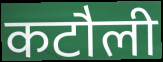
कटौली